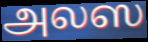
அலஸ